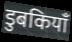
डुबकियाँ